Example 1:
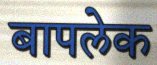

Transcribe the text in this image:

बापलेक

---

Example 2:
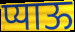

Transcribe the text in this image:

प्याऊ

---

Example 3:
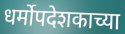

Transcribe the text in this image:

धर्मोपदेशकाच्या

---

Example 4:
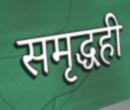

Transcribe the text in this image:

समृद्धही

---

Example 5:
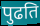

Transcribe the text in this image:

पुढति